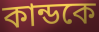
কান্ডকে